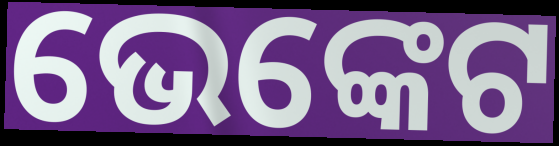
ଭେଙ୍କେଟ